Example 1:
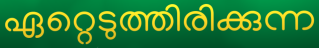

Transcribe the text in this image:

ഏറ്റെടുത്തിരിക്കുന്ന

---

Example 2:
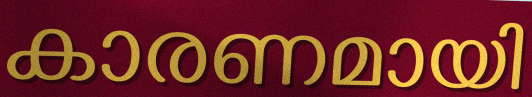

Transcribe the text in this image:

കാരണമായി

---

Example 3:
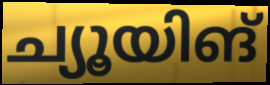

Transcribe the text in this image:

ച്യൂയിങ്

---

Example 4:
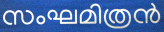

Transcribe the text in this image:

സംഘമിത്രൻ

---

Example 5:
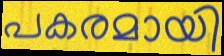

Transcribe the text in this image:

പകരമായി